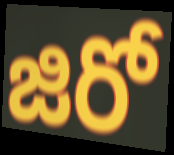
జిరో